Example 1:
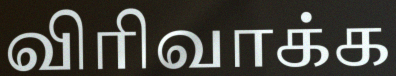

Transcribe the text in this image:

விரிவாக்க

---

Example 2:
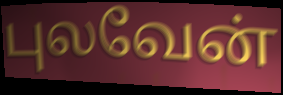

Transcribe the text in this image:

புலவேன்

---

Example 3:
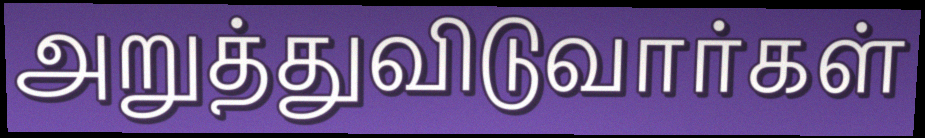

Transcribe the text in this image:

அறுத்துவிடுவார்கள்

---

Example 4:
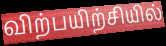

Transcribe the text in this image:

விற்பயிற்சியில்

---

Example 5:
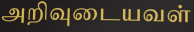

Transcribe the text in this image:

அறிவுடையவள்